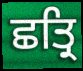
ਛਤ੍ਰਿ